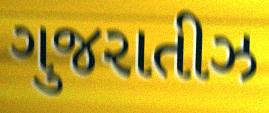
ગુજરાતીઝ